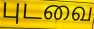
புடவை